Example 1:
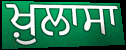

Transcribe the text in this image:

ਖ਼ੁਲਾਸਾ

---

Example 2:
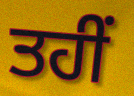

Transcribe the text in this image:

ਤਹੀਂ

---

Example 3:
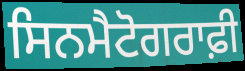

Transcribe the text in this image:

ਸਿਨਮੈਟੋਗਰਾਫ਼ੀ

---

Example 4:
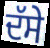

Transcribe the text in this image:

ਦੱਸੇ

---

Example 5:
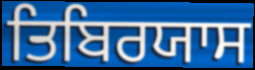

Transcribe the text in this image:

ਤਿਬਿਰਯਾਸ